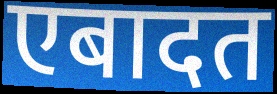
एबादत